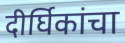
दीर्घिकांचा